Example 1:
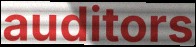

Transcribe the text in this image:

auditors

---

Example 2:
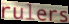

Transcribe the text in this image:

rulers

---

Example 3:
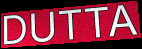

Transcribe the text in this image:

DUTTA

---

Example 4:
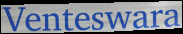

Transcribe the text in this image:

Venteswara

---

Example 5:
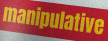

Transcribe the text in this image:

manipulative